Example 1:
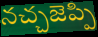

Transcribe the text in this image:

నచ్చజెప్పి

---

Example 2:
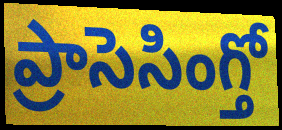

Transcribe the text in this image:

ప్రాసెసింగ్తో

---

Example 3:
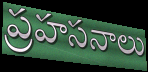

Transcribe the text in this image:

ప్రహసనాలు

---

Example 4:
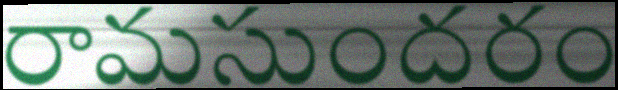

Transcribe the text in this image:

రామసుందరం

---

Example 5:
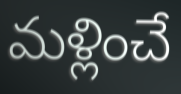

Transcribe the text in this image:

మళ్లించే